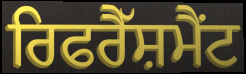
ਰਿਫਰੈੱਸ਼ਮੈਂਟ